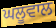
ਘਲੂਵਾਲ